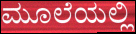
ಮೂಲೆಯಲ್ಲಿ